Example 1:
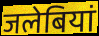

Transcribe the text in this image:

जलेबियां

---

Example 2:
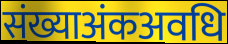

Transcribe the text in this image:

संख्याअंकअवधि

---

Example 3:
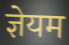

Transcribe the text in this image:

ज्ञेयम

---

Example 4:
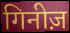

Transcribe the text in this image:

गिनीज़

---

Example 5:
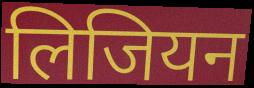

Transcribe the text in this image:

लिजियन